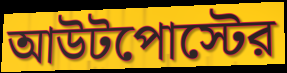
আউটপোস্টের